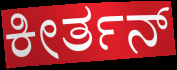
ಕೀರ್ತನ್